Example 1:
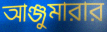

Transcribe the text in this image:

আঞ্জুমারার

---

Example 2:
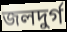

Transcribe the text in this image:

জলদুর্গ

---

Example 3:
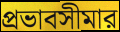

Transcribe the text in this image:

প্রভাবসীমার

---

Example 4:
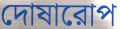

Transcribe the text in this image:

দোষারোপ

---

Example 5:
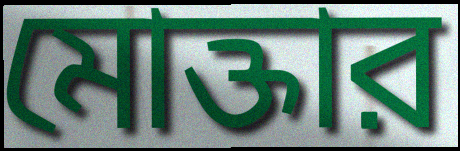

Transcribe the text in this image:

মোক্তার